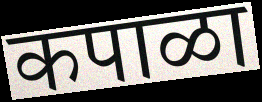
कपाळा